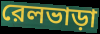
রেলভাড়া